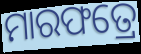
ମାରଫତ୍ରେ